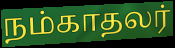
நம்காதலர்